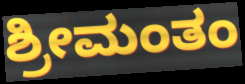
ಶ್ರೀಮಂತಂ